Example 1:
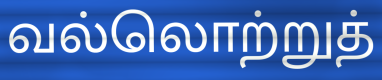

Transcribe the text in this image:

வல்லொற்றுத்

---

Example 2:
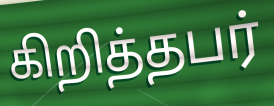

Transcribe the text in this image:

கிறித்தபர்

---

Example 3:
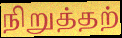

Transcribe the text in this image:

நிறுத்தற்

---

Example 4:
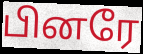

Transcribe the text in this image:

பினரே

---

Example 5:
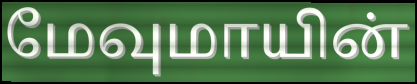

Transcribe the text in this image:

மேவுமாயின்